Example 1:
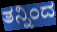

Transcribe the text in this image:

ತನ್ನಿಂದ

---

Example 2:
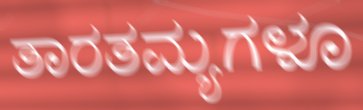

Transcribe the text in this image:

ತಾರತಮ್ಯಗಳೂ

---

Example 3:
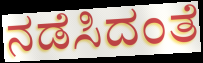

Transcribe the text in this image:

ನಡೆಸಿದಂತೆ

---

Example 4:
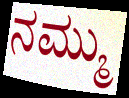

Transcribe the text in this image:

ನಮ್ಮು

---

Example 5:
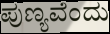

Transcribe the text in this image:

ಪುಣ್ಯವೆಂದು